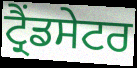
ਟ੍ਰੈਂਡਸੇਟਰ